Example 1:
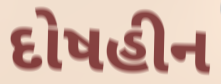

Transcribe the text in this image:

દોષહીન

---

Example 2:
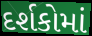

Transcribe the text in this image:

દર્શકોમાં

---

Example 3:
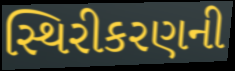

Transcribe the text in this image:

સ્થિરીકરણની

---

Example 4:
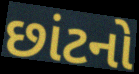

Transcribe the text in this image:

છાંટનો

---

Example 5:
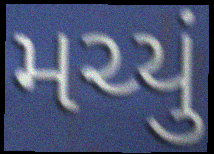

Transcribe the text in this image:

મચ્યું